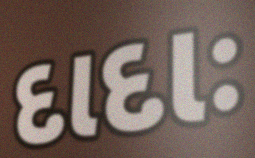
દાદાઃ